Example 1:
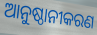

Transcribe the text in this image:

ଆନୁଷ୍ଠାନୀକରଣ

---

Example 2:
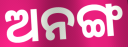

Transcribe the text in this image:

ଅନଙ୍ଗ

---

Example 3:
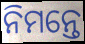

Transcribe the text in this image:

ନିମନ୍ତେ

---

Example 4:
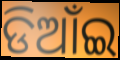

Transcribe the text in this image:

ଡିଆଁଇ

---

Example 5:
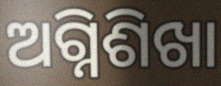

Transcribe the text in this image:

ଅଗ୍ନିଶିଖା